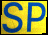
SP